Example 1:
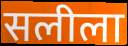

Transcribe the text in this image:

सलीला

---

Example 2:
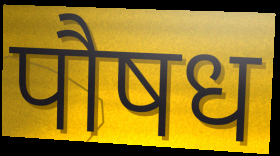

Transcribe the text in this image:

पौषध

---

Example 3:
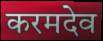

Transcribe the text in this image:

करमदेव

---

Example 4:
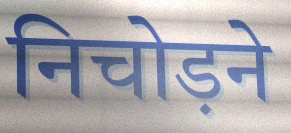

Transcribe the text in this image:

निचोड़ने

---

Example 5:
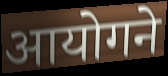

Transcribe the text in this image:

आयोगने